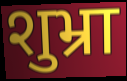
शुभ्रा